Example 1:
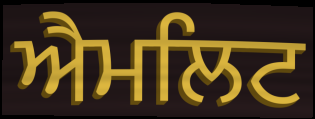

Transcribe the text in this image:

ਐਮਲਿਟ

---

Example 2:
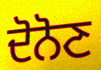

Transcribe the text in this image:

ਦੋਨੋਣ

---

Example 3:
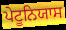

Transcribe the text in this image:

ਪੇਟੂਨਿਯਾਸ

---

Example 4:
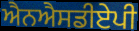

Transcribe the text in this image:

ਐਨਐਸਡੀਏਪੀ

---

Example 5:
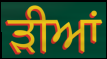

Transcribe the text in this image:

ੜੀਆਂ